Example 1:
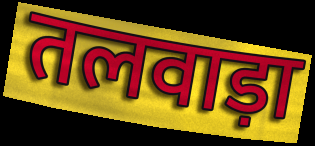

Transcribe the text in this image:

तलवाड़ा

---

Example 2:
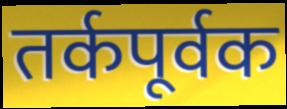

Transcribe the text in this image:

तर्कपूर्वक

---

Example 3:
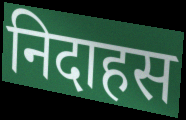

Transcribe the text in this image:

निदाहस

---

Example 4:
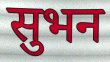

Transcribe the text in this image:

सुभन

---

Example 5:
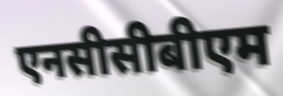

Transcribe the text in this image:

एनसीसीबीएम